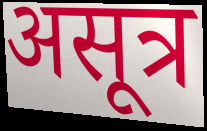
असूत्र